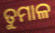
ତୁମାଳ